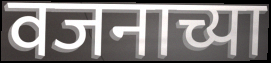
वजनाच्या